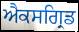
ਐਕਸਗ੍ਰਿਡ